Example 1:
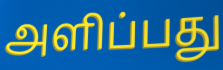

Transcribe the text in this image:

அளிப்பது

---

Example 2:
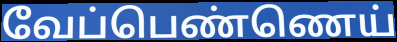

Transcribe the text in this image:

வேப்பெண்ணெய்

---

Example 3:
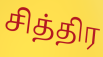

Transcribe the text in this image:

சித்திர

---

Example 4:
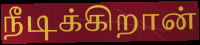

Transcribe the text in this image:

நீடிக்கிறான்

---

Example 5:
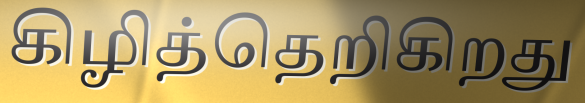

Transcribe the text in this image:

கிழித்தெறிகிறது